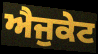
ਐਜੁਕੇਟ